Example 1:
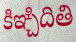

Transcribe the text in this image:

కిఞ్చిదితి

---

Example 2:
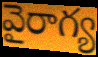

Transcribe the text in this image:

వైరాగ్య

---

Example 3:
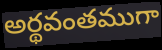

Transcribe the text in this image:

అర్థవంతముగా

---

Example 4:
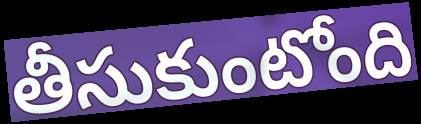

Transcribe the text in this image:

తీసుకుంటోంది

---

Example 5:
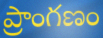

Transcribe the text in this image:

ప్రాంగణం